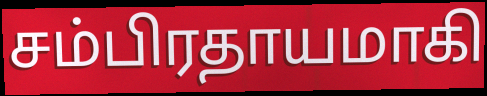
சம்பிரதாயமாகி